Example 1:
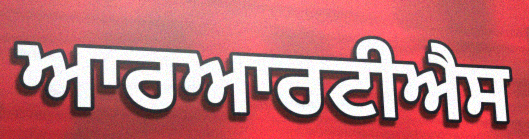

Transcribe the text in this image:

ਆਰਆਰਟੀਐਸ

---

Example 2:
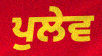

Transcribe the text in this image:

ਪੁਲੇਵ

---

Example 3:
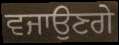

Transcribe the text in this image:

ਵਜਾਉਣਗੇ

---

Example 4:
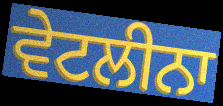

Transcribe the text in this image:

ਵੇਟਲੀਨਾ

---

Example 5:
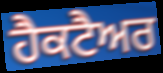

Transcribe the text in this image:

ਹੈਕਟੈਅਰ